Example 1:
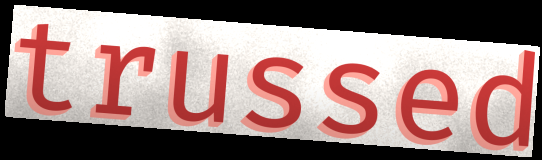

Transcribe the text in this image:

trussed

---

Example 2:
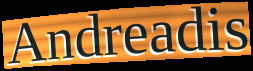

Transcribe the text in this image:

Andreadis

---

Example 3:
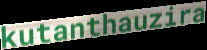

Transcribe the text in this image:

kutanthauzira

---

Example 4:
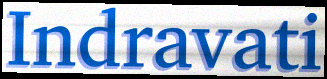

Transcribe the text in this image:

Indravati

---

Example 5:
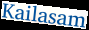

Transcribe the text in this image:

Kailasam